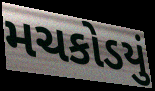
મચકોડયું